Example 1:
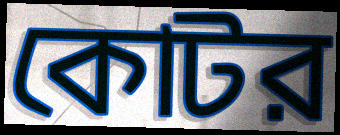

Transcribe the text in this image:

কোটর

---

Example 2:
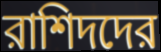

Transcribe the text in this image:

রাশিদদের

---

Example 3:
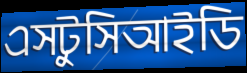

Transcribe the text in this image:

এসটুসিআইডি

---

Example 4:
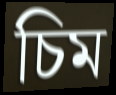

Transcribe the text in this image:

চিম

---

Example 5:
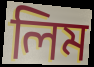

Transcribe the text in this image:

লিম